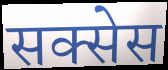
सक्सेस